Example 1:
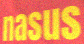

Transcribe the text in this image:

nasus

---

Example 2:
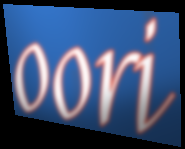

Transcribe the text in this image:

oori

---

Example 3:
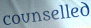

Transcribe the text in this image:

counselled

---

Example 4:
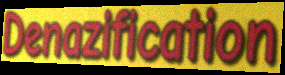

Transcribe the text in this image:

Denazification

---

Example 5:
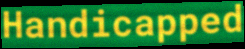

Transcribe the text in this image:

Handicapped